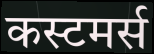
कस्‍टमर्स